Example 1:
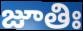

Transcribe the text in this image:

జూతిః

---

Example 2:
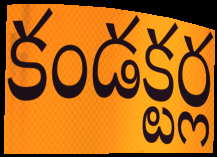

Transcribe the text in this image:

కండక్టర్ల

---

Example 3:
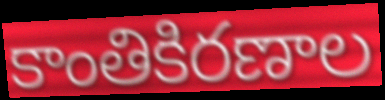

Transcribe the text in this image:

కాంతికిరణాల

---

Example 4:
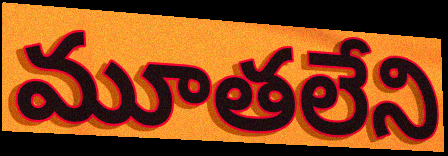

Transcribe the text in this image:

మూతలేని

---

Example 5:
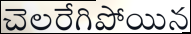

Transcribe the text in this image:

చెలరేగిపోయిన